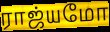
ராஜ்யமோ